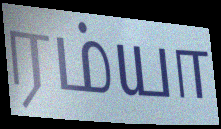
ரம்யா